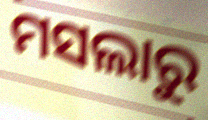
ମସଲାରୁ